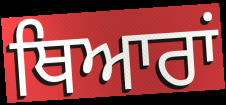
ਥਿਆਰਾਂ